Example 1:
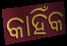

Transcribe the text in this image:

କାହିଁକ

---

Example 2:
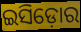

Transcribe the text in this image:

ଇସିଡ଼ୋର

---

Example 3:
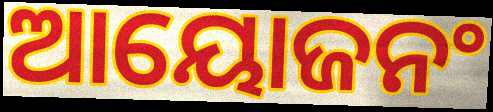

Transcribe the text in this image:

ଆୟୋଜନଂ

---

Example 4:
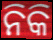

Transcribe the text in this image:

ନିକି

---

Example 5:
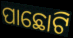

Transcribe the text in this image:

ପାଛୋଟି